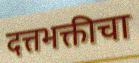
दत्तभक्तीचा